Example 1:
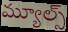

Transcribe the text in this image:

మ్యూల్స్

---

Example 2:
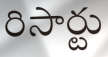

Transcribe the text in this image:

రిసార్టు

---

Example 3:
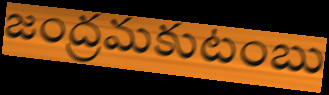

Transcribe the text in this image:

జంద్రమకుటంబు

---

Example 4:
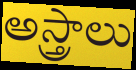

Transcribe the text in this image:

అస్త్రాలు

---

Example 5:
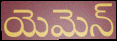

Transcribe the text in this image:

యెమెన్